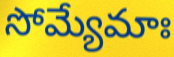
సోమ్యేమాః